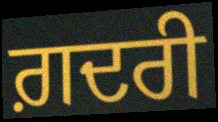
ਗ਼ਦਰੀ